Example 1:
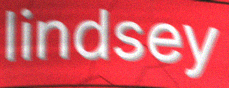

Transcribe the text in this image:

lindsey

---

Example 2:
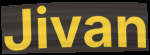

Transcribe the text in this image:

Jivan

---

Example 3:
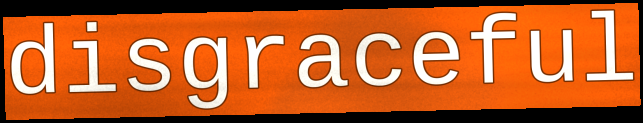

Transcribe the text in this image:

disgraceful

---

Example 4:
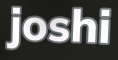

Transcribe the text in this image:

joshi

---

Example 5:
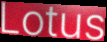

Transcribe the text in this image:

Lotus